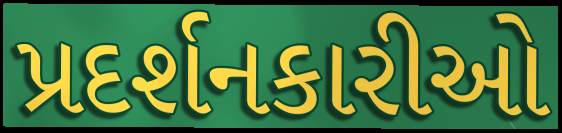
પ્રદર્શનકારીઓ